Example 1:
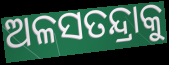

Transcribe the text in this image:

ଅଳସତନ୍ଦ୍ରାକୁ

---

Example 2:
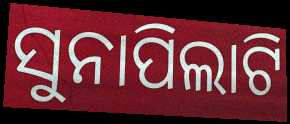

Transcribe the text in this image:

ସୁନାପିଲାଟି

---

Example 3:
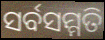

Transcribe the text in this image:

ସର୍ବସମ୍ମତି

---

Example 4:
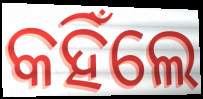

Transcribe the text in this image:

କହିଁଲେ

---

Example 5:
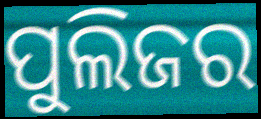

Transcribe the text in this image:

ପୁଲିଜର